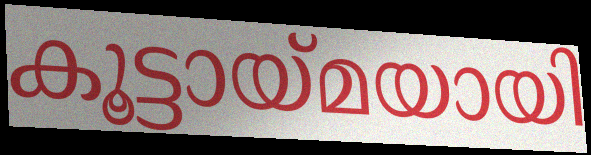
കൂട്ടായ്മയായി